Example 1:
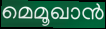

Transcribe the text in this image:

മെമൂഖാൻ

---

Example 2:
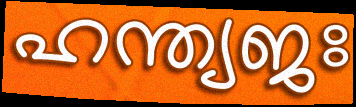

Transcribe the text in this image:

ഹന്ത്യജഃ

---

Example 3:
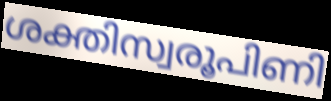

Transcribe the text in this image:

ശക്തിസ്വരൂപിണി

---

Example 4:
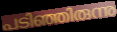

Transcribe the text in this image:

പടിഞ്ഞിരുന്നു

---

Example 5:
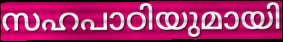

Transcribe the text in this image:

സഹപാഠിയുമായി